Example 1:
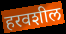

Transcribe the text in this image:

हरवशील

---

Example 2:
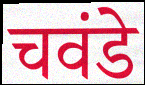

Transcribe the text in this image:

चवंडे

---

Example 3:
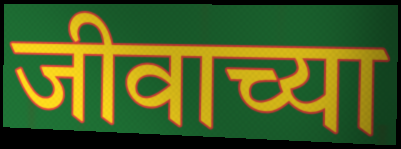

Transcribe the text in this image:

जीवाच्या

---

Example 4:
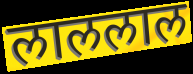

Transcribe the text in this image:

लाललाल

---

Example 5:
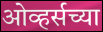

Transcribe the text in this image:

ओव्हर्सच्या